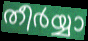
തീർയ്യാ